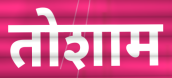
तोशाम